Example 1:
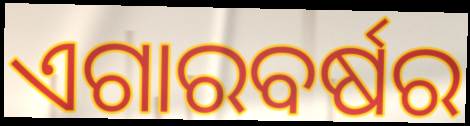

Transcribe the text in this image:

ଏଗାରବର୍ଷର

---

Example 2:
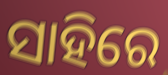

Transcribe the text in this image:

ସାହିରେ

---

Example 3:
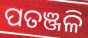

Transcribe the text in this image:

ପତଞ୍ଜଳି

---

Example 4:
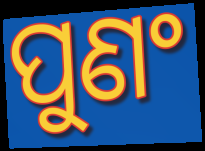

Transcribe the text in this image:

ପୁଣଂ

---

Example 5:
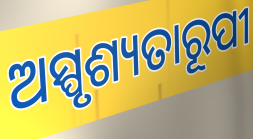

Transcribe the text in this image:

ଅସ୍ପୃଶ୍ୟତାରୂପୀ